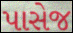
પાસેજ